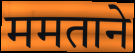
ममताने